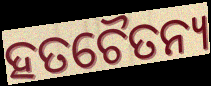
ହତଚୈତନ୍ୟ